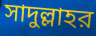
সাদুল্লাহর